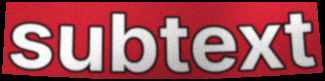
subtext